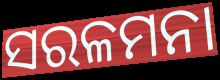
ସରଳମନା